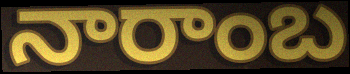
నారాంబ